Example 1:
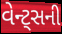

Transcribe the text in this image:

વેન્ટ્સની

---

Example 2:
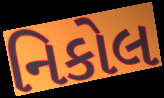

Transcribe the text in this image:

નિકોલ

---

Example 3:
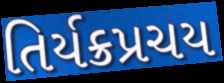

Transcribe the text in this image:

તિર્યક્રપ્રચય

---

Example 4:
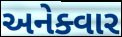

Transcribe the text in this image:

અનેક્વાર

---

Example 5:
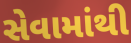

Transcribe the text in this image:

સેવામાંથી